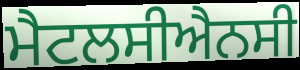
ਮੈਟਲਸੀਐਨਸੀ